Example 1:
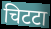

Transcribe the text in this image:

चिटटा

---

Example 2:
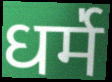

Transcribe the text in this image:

धर्म॑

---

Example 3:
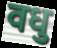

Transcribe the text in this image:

वधु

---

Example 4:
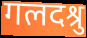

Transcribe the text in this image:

गलदश्रु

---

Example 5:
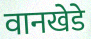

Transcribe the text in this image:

वानखेडे